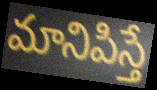
మానిపిస్తే